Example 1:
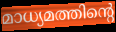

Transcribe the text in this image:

മാധ്യമത്തിന്റെ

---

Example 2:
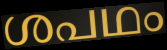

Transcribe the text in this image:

ശപഥം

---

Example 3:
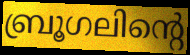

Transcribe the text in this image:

ബ്രൂഗലിന്റെ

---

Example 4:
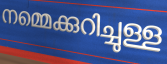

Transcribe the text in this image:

നമ്മെക്കുറിച്ചുള്ള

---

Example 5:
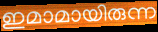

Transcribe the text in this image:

ഇമാമായിരുന്ന